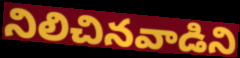
నిలిచినవాడిని